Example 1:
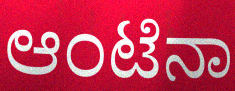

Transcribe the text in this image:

ಆಂಟೆನಾ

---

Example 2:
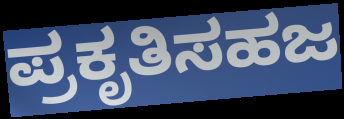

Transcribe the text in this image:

ಪ್ರಕೃತಿಸಹಜ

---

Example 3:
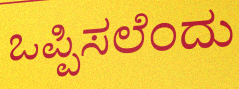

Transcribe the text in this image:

ಒಪ್ಪಿಸಲೆಂದು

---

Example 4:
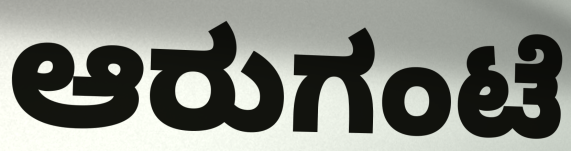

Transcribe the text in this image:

ಆರುಗಂಟೆ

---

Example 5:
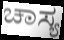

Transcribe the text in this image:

ಚಾಸ್ಯ